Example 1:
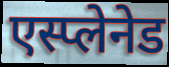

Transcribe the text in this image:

एस्प्लेनेड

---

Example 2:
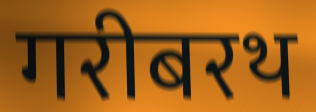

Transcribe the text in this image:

गरीबरथ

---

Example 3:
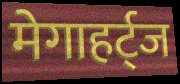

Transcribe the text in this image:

मेगाहर्ट्ज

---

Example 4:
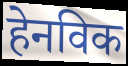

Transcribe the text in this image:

हेनविक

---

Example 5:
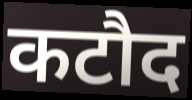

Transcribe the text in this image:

कटौद